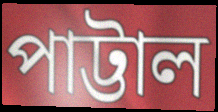
পাট্টাল